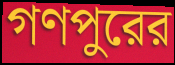
গণপুরের